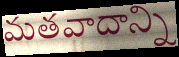
మతవాదాన్ని